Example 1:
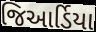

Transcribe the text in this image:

જિઆર્ડિયા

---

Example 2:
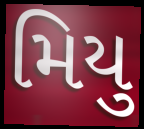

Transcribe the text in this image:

મિયુ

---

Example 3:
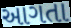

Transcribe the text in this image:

આગતા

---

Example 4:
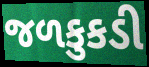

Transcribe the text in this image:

જળકુકડી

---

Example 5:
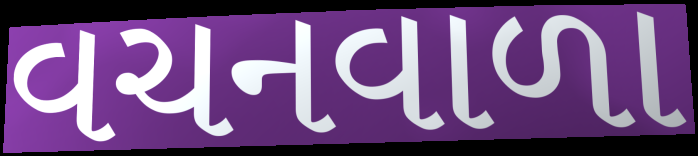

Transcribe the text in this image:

વચનવાળા